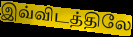
இவ்விடத்திலே